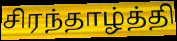
சிரந்தாழ்த்தி